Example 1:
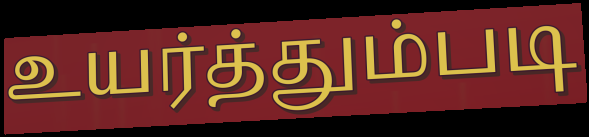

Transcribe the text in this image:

உயர்த்தும்படி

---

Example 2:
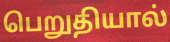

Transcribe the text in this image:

பெறுதியால்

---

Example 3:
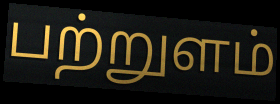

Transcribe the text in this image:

பற்றுளம்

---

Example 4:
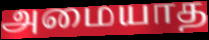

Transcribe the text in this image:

அமையாத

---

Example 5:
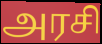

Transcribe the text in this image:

அரசி